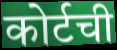
कोर्टची